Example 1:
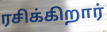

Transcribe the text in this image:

ரசிக்கிறார்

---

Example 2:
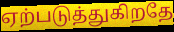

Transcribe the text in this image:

ஏற்படுத்துகிறதே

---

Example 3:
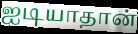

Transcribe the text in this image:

ஐடியாதான்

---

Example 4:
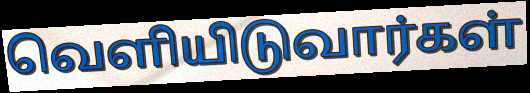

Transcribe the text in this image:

வெளியிடுவார்கள்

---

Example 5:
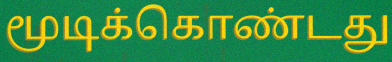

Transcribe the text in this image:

மூடிக்கொண்டது